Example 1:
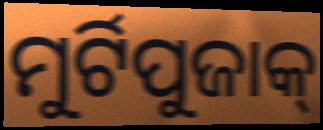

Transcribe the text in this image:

ମୁର୍ଟିପୁଜାକ୍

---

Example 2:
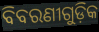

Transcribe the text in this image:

ବିବରଣୀଗୁଡ଼ିକ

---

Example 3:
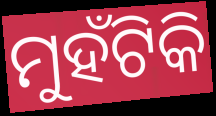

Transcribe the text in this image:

ମୁହଁଟିକି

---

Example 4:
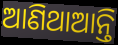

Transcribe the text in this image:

ଆଣିଥାଆନ୍ତି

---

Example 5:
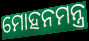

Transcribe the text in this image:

ମୋହନମନ୍ତ୍ର